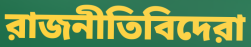
রাজনীতিবিদেরা